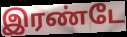
இரண்டே